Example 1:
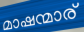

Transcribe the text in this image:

മാഷന്മാര്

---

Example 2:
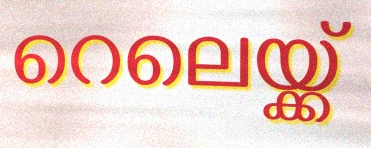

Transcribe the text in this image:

റെലെയ്ക്ക്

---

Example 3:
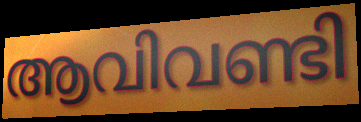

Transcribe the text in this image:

ആവിവണ്ടി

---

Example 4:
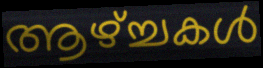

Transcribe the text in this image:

ആഴ്ച്ചകൾ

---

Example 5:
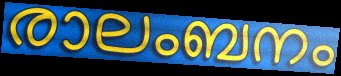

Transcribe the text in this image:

രാലംബനം